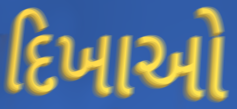
દિખાઓ